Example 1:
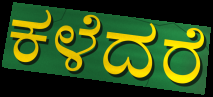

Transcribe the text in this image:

ಕಳೆದರೆ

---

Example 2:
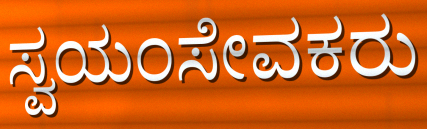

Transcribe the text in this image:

ಸ್ವಯಂಸೇವಕರು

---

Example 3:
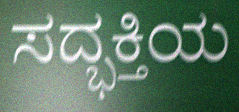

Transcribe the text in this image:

ಸದ್ಭಕ್ತಿಯ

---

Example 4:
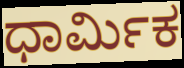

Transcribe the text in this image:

ಧಾರ್ಮಿಕ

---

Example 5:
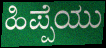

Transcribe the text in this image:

ಹಿಪ್ಪೆಯು